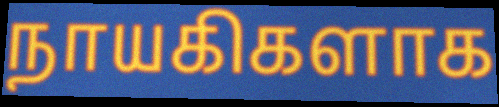
நாயகிகளாக